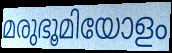
മരുഭൂമിയോളം